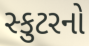
સ્કુટરનો